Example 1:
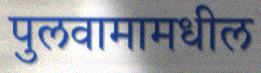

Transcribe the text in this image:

पुलवामामधील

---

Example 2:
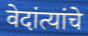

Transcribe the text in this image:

वेदांत्यांचे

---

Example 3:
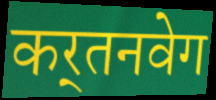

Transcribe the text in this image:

कर्तनवेग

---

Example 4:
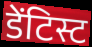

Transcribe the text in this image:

डेंटिस्ट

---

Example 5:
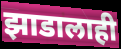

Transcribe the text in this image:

झाडालाही